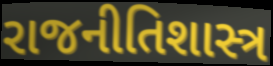
રાજનીતિશાસ્ત્ર